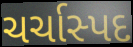
ચર્ચાસ્પદ